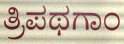
ತ್ರಿಪಥಗಾಂ